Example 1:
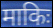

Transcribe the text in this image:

माकिः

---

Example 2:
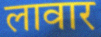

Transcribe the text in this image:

लावार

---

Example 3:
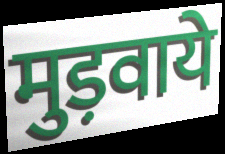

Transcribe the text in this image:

मुड़वाये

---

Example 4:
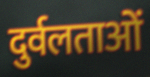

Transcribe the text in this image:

दुर्वलताओं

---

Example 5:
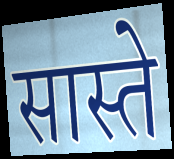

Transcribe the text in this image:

सास्ते